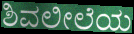
ಶಿವಲೀಲೆಯ